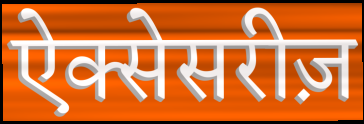
ऐक्सेसरीज़